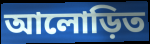
আলোড়িত